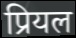
प्रियल